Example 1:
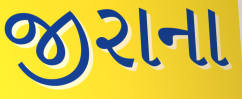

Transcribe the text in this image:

જીરાના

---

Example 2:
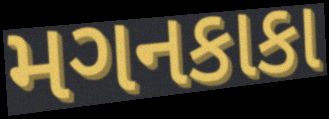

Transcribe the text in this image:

મગનકાકા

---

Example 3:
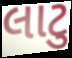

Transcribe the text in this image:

લાટુ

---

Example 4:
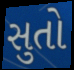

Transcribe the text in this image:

સુતો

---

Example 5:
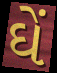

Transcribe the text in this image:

ઘેં